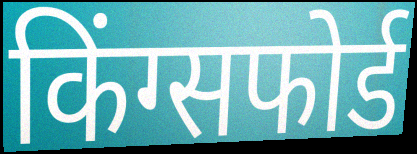
किंग्सफोर्ड